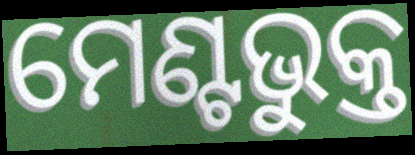
ମେଣ୍ଟଭୁକ୍ତ